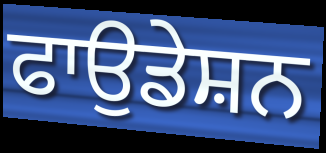
ਫਾਉਡੇਸ਼ਨ